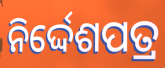
ନିର୍ଦ୍ଦେଶପତ୍ର